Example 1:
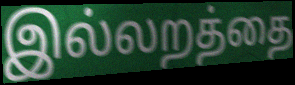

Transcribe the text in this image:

இல்லறத்தை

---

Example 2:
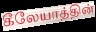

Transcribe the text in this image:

கீலேயாத்தின்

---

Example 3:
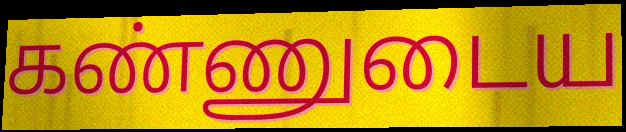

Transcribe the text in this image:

கண்ணுடைய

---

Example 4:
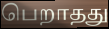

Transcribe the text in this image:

பெறாதது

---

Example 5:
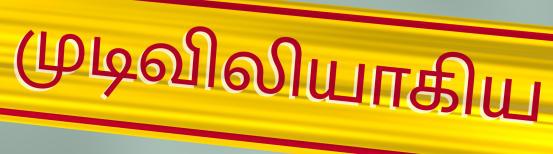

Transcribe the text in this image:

முடிவிலியாகிய